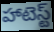
హాటెస్ట్